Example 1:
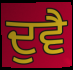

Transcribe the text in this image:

ਦੁਵੈ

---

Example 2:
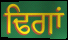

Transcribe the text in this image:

ਢਿਗਾਂ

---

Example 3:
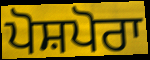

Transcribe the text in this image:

ਪੋਸ਼ਪੋਰਾ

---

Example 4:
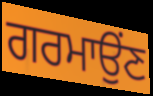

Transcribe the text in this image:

ਗਰਮਾਉਂਣ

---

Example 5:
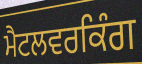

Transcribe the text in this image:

ਮੈਟਲਵਰਕਿੰਗ